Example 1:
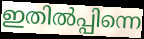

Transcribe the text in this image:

ഇതിൽപ്പിന്നെ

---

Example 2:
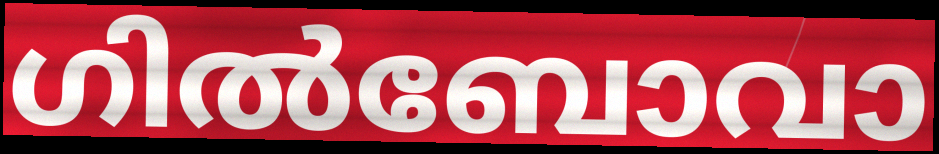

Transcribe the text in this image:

ഗിൽബോവാ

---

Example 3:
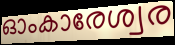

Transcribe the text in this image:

ഓംകാരേശ്വര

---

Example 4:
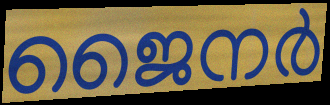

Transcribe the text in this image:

ജൈനർ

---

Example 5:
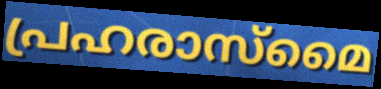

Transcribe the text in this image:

പ്രഹരാസ്മൈ